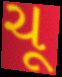
ચૂ